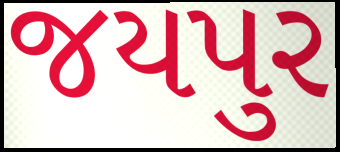
જયપુર